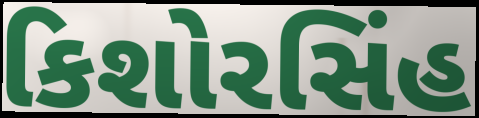
કિશોરસિંહ